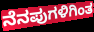
ನೆನಪುಗಳಿಗಿಂತ